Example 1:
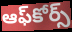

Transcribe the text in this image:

ఆఫ్‌కోర్స్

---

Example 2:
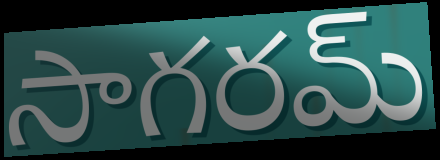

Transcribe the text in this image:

సాగరమ్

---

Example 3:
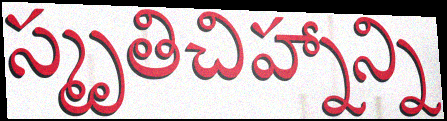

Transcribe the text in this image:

స్మృతిచిహ్నాన్ని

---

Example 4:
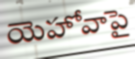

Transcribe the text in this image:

యెహోవాపై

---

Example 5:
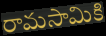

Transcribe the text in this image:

రామసామికి